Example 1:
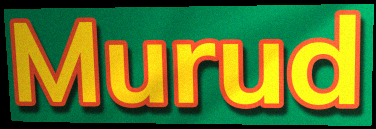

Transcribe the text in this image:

Murud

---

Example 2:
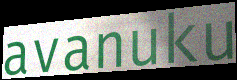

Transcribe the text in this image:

avanuku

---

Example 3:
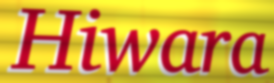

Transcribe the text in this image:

Hiwara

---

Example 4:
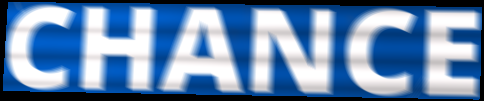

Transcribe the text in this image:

CHANCE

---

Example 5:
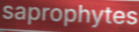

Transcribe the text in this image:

saprophytes